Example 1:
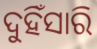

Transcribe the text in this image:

ଦୁହିଁସାରି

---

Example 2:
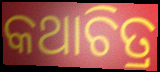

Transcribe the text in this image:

କଥାଚିତ୍ର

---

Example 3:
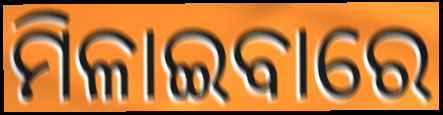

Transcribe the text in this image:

ମିଳାଇବାରେ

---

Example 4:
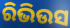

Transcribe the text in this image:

ରିଭିଉସ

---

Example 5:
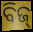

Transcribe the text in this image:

ବିଜ୍